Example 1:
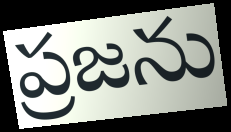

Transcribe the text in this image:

ప్రజను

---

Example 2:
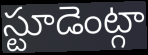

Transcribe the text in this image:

స్టూడెంట్గా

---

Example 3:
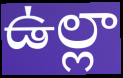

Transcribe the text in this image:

ఉల్లా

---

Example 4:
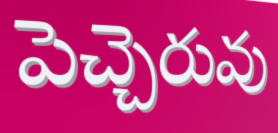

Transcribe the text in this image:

పెచ్చెరువు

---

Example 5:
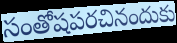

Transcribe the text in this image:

సంతోషపరచినందుకు